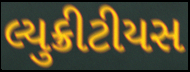
લ્યુક્રીટીયસ